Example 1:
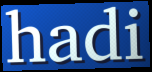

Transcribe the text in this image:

hadi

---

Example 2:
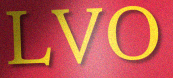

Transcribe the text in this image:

LVO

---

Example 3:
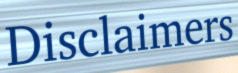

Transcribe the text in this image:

Disclaimers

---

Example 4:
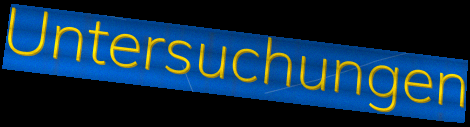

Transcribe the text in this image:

Untersuchungen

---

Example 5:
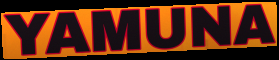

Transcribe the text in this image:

YAMUNA